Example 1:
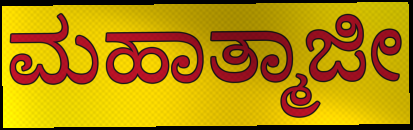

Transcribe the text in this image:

ಮಹಾತ್ಮಾಜೀ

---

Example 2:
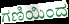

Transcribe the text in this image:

ಗಣಿಯಿಂದ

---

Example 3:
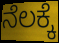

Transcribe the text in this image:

ನೆಲಕ್ಕೆ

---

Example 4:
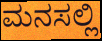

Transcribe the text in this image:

ಮನಸಲ್ಲಿ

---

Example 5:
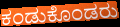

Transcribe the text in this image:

ಕಂಡುಕೊಂಡರು